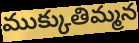
ముక్కుతిమ్మన